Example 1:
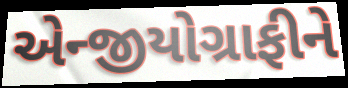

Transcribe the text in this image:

એન્જીયોગ્રાફીને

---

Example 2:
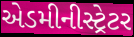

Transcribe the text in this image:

એડમીનીસ્ટ્રેટર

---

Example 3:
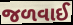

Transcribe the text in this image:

જળવાઈ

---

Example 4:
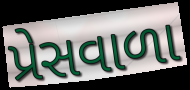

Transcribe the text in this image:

પ્રેસવાળા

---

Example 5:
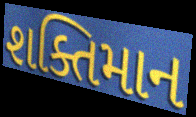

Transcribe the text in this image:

શક્તિમાન